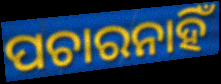
ପଚାରନାହିଁ